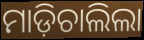
ମାଡ଼ିଚାଲିଲା